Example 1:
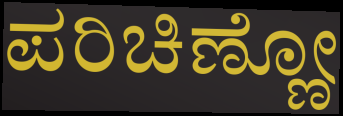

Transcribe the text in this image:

ಪರಿಚಿಣ್ಣೋ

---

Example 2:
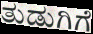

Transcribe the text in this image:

ತುಡುಗಿಗೆ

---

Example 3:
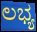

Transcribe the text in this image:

ಲಭ್ಯ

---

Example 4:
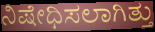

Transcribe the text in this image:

ನಿಷೇಧಿಸಲಾಗಿತ್ತು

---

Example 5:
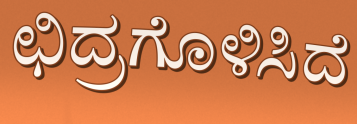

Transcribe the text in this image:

ಛಿದ್ರಗೊಳಿಸಿದೆ